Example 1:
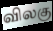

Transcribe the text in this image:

விலகு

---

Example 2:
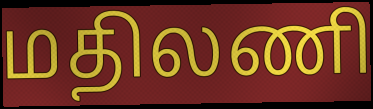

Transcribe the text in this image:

மதிலணி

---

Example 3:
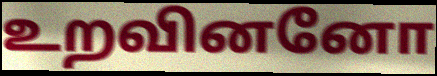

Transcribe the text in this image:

உறவினனோ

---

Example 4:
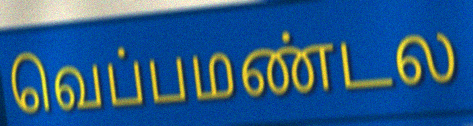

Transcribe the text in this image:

வெப்பமண்டல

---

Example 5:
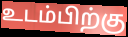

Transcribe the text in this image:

உடம்பிற்கு